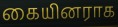
கையினராக